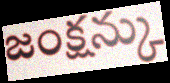
జంక్షన్కు